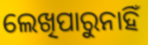
ଲେଖିପାରୁନାହିଁ